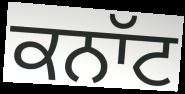
ਕਨਾੱਟ